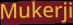
Mukerji